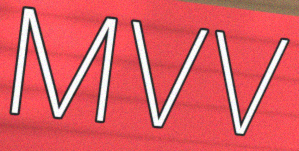
MVV